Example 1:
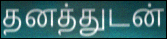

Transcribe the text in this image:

தனத்துடன்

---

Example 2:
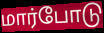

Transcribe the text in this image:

மார்போடு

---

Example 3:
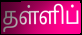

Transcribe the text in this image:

தள்ளிப்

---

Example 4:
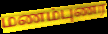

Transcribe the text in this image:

மணம்புணர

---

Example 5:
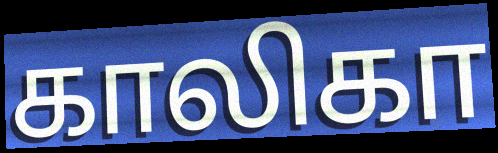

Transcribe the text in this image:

காலிகா